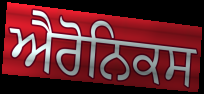
ਐਰੋਨਿਕਸ